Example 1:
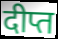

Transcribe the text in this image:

दीप्त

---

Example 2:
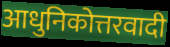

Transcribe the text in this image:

आधुनिकोत्तरवादी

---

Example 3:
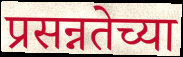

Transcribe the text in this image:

प्रसन्नतेच्या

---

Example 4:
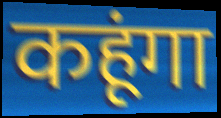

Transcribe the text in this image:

कहूंगा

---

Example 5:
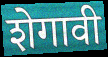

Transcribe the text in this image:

शेगावी